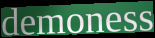
demoness